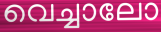
വെച്ചാലോ